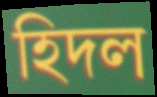
হিদল